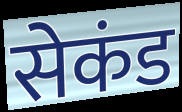
सेकंड